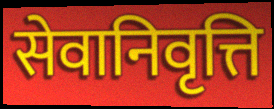
सेवानिवृत्ति